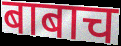
बाबाच